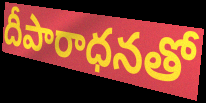
దీపారాధనతో